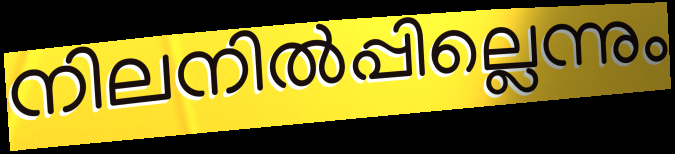
നിലനിൽപ്പില്ലെന്നും